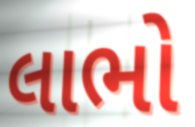
લાભો